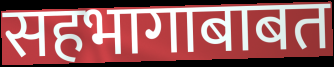
सहभागाबाबत